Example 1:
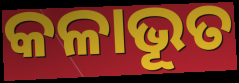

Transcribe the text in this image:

କଳାଭୂତ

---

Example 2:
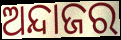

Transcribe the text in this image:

ଅନ୍ଦାଜର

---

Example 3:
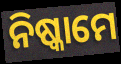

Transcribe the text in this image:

ନିଷ୍କାମେ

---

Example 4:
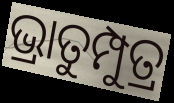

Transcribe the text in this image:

ଭ୍ରାତୁମ୍ପୁତ୍ର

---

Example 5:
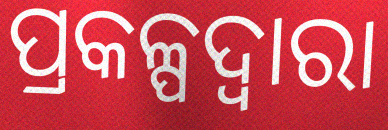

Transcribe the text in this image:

ପ୍ରକଳ୍ପଦ୍ୱାରା